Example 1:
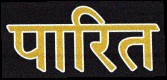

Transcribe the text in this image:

पारित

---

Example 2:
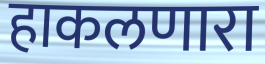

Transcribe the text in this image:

हाकलणारा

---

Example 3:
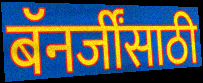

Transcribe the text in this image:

बॅनर्जींसाठी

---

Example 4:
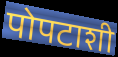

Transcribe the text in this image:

पोपटाशी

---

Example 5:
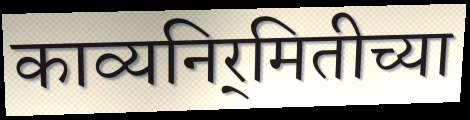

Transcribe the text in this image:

काव्यनिर्मितीच्या